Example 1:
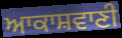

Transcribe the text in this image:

ਆਕਾਸ਼ਵਾਣੀ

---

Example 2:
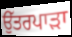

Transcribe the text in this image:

ਉੱਤਰਪਾੜਾ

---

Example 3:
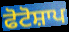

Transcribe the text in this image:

ਫੋਟੋਸ਼ਾਪ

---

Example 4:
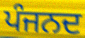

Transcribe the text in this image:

ਪੰਜਨਦ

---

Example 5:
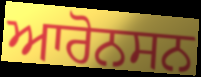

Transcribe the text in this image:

ਆਰੋਨਸਨ